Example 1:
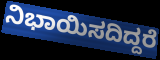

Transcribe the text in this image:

ನಿಭಾಯಿಸದಿದ್ದರೆ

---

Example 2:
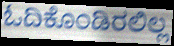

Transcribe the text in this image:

ಓದಿಕೊಂಡಿರಲಿಲ್ಲ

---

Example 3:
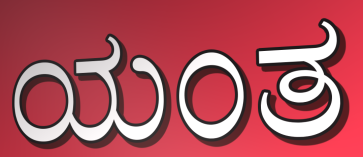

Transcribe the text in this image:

ಯಂತ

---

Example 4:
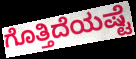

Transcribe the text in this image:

ಗೊತ್ತಿದೆಯಷ್ಟೆ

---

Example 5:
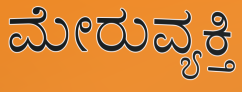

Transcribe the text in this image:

ಮೇರುವ್ಯಕ್ತಿ